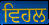
ਵਿਹਲ